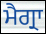
ਮੈਗ੍ਰਾ